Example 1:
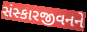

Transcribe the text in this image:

સંસ્કારજીવનને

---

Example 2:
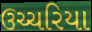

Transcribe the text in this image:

ઉચ્ચરિયા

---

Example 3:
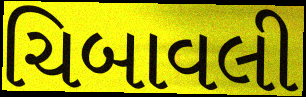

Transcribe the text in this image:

ચિબાવલી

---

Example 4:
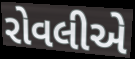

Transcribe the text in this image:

રોવલીએ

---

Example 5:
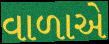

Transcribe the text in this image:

વાળાએ